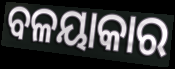
ବଳୟାକାର